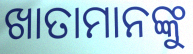
ଖାତାମାନଙ୍କୁ